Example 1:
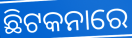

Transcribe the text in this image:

ଛିଟକନାରେ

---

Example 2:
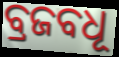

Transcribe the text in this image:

ବ୍ରଜବଧୂ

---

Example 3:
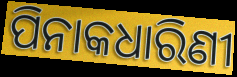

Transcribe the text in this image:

ପିନାକଧାରିଣୀ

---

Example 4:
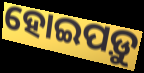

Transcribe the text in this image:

ହୋଇପଡ଼ୁ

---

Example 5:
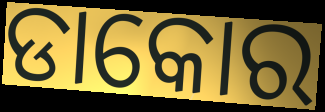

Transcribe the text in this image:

ଡାକୋର